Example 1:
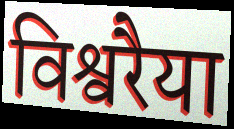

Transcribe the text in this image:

विश्वरैया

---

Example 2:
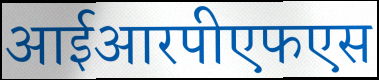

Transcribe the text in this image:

आईआरपीएफएस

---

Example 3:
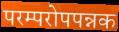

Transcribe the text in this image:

परम्परोपपन्नक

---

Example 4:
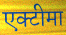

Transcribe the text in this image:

एक्टीमा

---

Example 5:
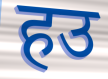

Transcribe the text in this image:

हउ